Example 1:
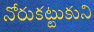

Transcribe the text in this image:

నోరుకట్టుకుని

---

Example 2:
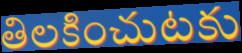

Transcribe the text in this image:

తిలకించుటకు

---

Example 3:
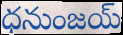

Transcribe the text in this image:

ధనుంజయ్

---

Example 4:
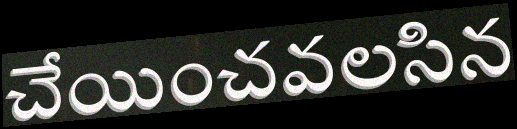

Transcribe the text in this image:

చేయించవలసిన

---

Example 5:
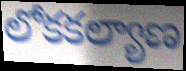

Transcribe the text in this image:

లోకకల్యాణ